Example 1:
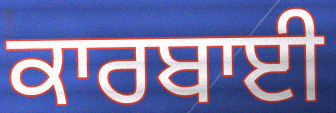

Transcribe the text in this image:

ਕਾਰਬਾਈ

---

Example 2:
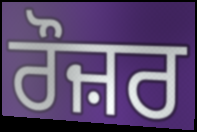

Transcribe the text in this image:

ਰੌਜ਼ਰ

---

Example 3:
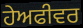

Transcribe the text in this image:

ਹੇਅਫੀਵਰ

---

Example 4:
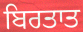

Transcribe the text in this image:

ਬਿਰਤਾਤ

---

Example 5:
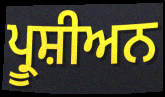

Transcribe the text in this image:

ਪ੍ਰੂਸ਼ੀਅਨ